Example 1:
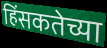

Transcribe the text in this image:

हिंसकतेच्या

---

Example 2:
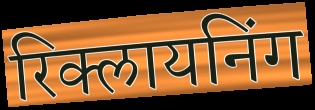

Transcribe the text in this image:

रिक्लायनिंग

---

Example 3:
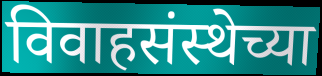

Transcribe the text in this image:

विवाहसंस्थेच्या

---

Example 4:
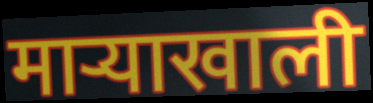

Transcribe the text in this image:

माऱ्याखाली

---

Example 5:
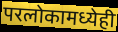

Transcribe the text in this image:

परलोकामध्येही